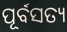
ପୂର୍ବସତ୍ୟ